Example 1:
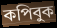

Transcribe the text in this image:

কপিবুক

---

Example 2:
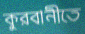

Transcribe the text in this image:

কুরবানীতে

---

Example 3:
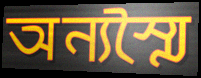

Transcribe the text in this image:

অন্যস্মৈ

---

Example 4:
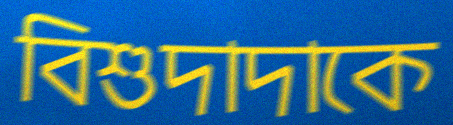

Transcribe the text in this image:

বিশুদাদাকে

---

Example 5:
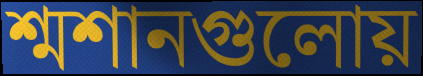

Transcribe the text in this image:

শ্মশানগুলোয়